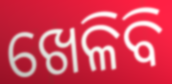
ଖେଳିବି